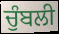
ਚੁੰਬਲੀ